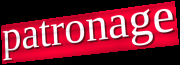
patronage